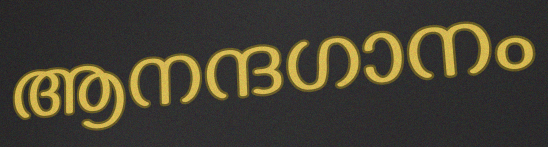
ആനന്ദഗാനം